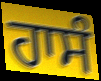
ਹਾਸੰ